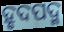
ହୃଦପଦ୍ମ